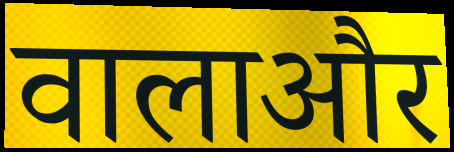
वालाऔर